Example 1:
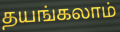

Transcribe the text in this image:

தயங்கலாம்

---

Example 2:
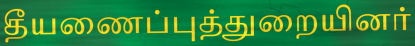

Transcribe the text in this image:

தீயணைப்புத்துறையினர்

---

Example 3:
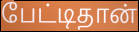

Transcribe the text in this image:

பேட்டிதான்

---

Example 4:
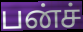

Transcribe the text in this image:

பன்ச்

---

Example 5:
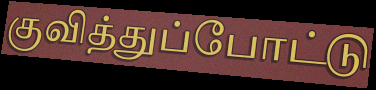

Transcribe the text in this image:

குவித்துப்போட்டு